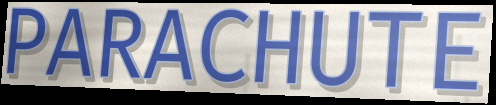
PARACHUTE